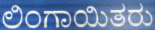
ಲಿಂಗಾಯಿತರು